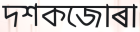
দশকজোৰা